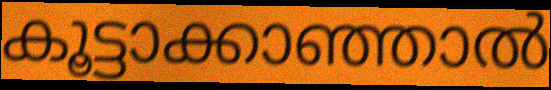
കൂട്ടാക്കാഞ്ഞാൽ